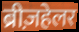
ब्रीज़हेलर